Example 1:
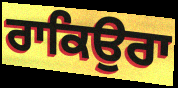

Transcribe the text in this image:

ਰਾਕਿਉਰਾ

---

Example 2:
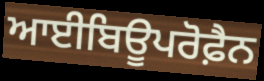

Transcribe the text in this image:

ਆਈਬਿਊਪਰੋਫ਼ੈਨ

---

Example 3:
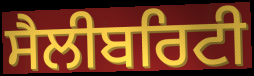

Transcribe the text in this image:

ਸੈਲੀਬਰਿਟੀ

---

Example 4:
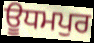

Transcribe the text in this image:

ਊਧਮਪੁਰ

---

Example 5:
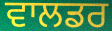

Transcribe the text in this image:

ਵਾਲਡਰ